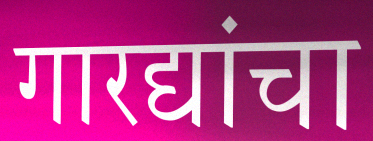
गारद्यांचा